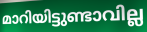
മാറിയിട്ടുണ്ടാവില്ല